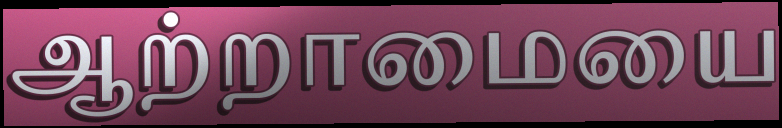
ஆற்றாமையை